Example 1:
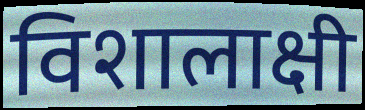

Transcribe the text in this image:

विशालाक्षी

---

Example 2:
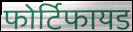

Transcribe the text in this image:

फोर्टिफायड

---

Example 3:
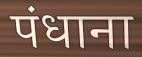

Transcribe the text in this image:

पंधाना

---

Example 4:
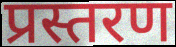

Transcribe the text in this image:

प्रस्तरण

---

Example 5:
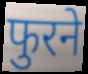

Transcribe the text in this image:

फुरने